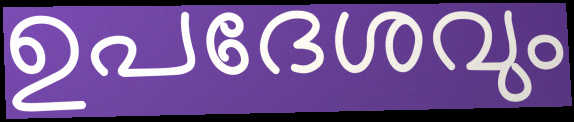
ഉപദേശവും